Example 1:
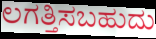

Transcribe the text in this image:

ಲಗತ್ತಿಸಬಹುದು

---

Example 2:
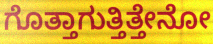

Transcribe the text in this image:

ಗೊತ್ತಾಗುತ್ತಿತ್ತೇನೋ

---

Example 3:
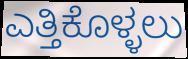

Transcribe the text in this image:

ಎತ್ತಿಕೊಳ್ಳಲು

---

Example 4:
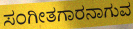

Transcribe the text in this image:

ಸಂಗೀತಗಾರನಾಗುವ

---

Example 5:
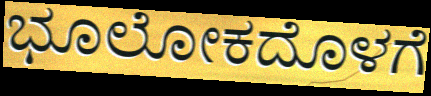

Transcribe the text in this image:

ಭೂಲೋಕದೊಳಗೆ